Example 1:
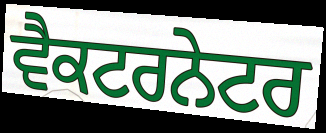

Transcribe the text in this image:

ਵੈਕਟਰਨੇਟਰ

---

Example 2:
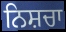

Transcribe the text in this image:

ਨਿਸ਼ਚਾ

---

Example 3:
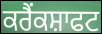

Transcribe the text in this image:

ਕਰੈਂਕਸ਼ਾਫਟ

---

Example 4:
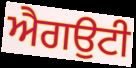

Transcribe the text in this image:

ਐਗਉਟੀ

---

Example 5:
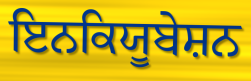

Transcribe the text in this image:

ਇਨਕਿਯੂਬੇਸ਼ਨ